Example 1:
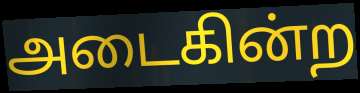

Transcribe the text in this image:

அடைகின்ற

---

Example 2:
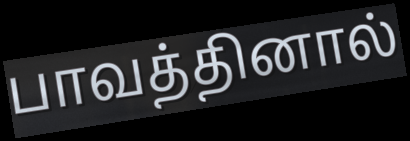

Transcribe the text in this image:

பாவத்தினால்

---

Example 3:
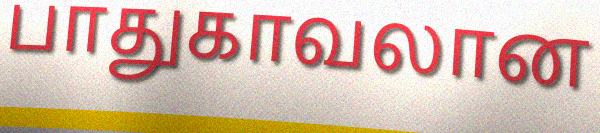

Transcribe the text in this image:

பாதுகாவலான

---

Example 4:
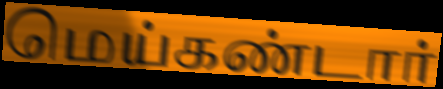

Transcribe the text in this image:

மெய்கண்டார்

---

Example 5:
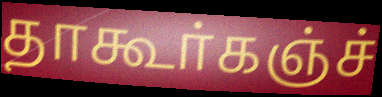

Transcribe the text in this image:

தாகூர்கஞ்ச்